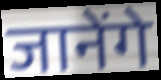
जानेंगे